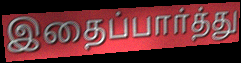
இதைப்பார்த்து